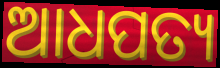
ଆଧପତ୍ୟ